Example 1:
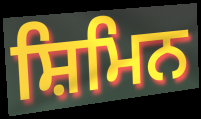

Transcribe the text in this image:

ਸ਼ਿਮਿਨ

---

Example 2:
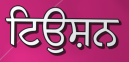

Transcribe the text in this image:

ਟਿਉਸ਼ਨ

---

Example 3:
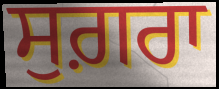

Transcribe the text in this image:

ਸੁਗ਼ਰਾ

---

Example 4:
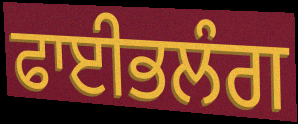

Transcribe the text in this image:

ਫਾਈਭਲੰਗ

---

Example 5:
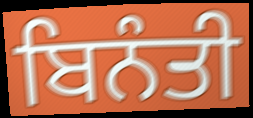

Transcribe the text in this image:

ਬਿਨੰਤੀ